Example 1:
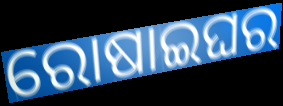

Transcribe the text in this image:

ରୋଷାଇଘର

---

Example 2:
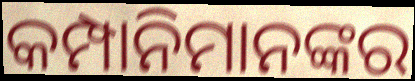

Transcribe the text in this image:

କମ୍ପାନିମାନଙ୍କର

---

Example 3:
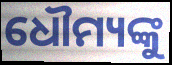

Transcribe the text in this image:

ଧୌମ୍ୟଙ୍କୁ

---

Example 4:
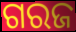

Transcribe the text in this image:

ଗରଜ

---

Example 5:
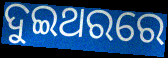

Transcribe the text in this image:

ଦୁଇଥରରେ